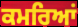
ਕਮਰਿਆਂ